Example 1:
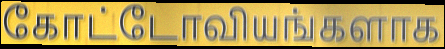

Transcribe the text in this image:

கோட்டோவியங்களாக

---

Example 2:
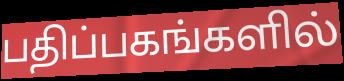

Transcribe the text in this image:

பதிப்பகங்களில்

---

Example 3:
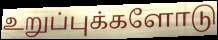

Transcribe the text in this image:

உறுப்புக்களோடு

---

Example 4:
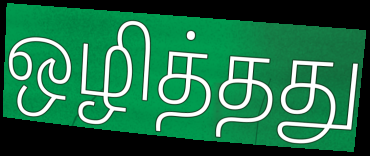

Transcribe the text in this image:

ஒழித்தது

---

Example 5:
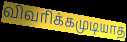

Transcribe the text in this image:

விவரிக்கமுடியாத